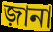
জ়ানা